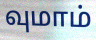
வுமாம்